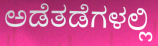
ಅಡೆತಡೆಗಳಲ್ಲಿ